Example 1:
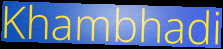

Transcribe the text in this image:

Khambhadi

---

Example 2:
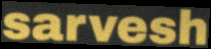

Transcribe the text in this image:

sarvesh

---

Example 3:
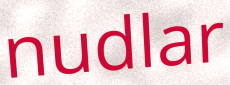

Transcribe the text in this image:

nudlar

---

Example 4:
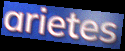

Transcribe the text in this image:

arietes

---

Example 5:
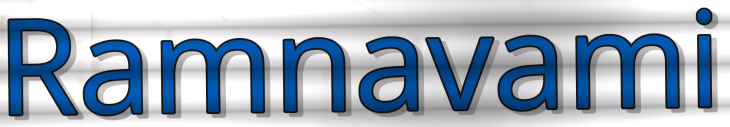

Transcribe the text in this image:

Ramnavami